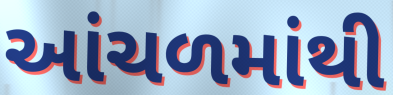
આંચળમાંથી